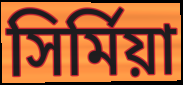
সির্মিয়া